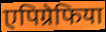
एपिग्रेफिया